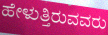
ಹೇಳುತ್ತಿರುವವರು